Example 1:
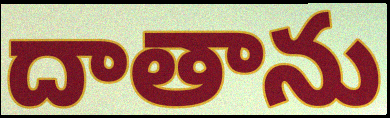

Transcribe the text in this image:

దాతాను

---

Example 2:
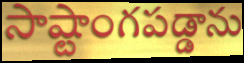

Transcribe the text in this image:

సాష్టాంగపడ్డాను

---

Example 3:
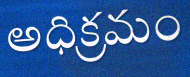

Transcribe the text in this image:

అధిక్రమం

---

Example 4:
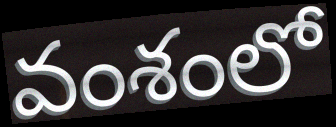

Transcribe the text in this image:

వంశంలో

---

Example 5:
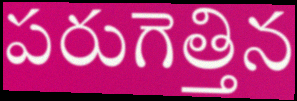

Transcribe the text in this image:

పరుగెత్తిన